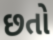
છતો